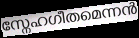
സ്നേഹഗീതമെന്നൻ